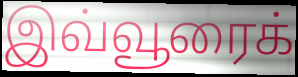
இவ்வூரைக்